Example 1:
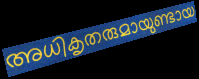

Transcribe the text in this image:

അധികൃതരുമായുണ്ടായ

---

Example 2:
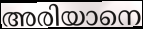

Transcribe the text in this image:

അരിയാനെ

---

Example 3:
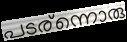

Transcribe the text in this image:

പടര്ന്നൊരു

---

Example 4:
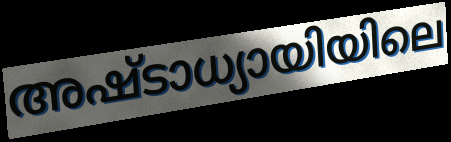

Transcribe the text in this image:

അഷ്ടാധ്യായിയിലെ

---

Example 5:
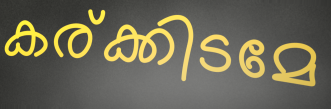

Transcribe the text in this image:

കര്ക്കിടമേ